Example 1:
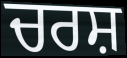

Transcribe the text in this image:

ਚਰਸ਼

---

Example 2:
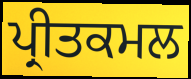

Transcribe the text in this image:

ਪ੍ਰੀਤਕਮਲ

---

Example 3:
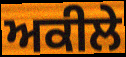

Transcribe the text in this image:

ਅਕੀਲੇ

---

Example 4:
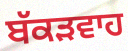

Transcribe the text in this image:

ਬੱਕੜਵਾਹ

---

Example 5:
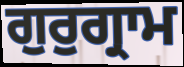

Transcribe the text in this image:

ਗੁਰੁਗ੍ਰਾਮ